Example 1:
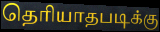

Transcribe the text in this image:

தெரியாதபடிக்கு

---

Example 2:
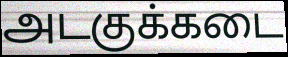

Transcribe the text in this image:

அடகுக்கடை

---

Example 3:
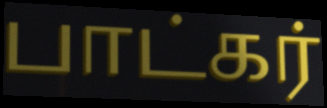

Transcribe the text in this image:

பாட்கர்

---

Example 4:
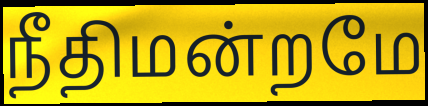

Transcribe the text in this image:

நீதிமன்றமே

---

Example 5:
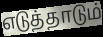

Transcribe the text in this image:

எடுத்தாடும்